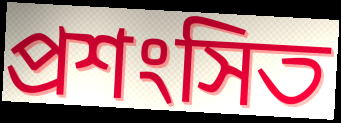
প্রশংসিত